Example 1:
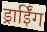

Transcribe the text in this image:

ड्राईिंग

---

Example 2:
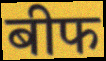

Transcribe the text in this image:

बीफ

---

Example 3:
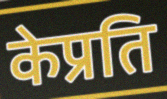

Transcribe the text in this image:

केप्रति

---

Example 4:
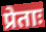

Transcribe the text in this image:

प्रेताः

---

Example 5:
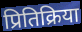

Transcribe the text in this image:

प्रितिक्रिया